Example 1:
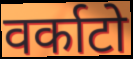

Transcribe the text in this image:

वर्काटो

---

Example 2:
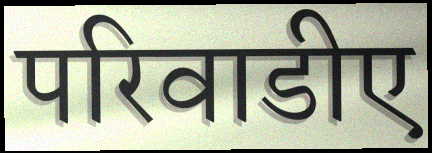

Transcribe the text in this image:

परिवाडीए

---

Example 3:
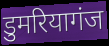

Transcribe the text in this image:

डुमरियागंज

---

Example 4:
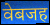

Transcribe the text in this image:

वेबजह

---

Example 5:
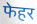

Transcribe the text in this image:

फेहर